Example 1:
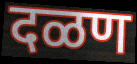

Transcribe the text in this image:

दळण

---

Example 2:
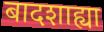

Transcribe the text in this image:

बादशाह्या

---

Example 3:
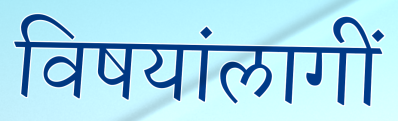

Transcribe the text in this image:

विषयांलागीं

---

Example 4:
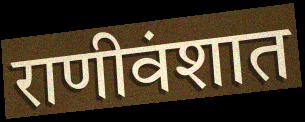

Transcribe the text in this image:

राणीवंशात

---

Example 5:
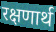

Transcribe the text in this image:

रक्षणार्थ